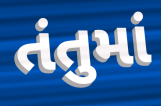
તંતુમાં